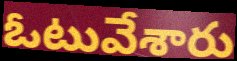
ఓటువేశారు